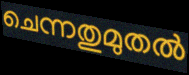
ചെന്നതുമുതൽ